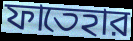
ফাতেহার